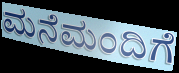
ಮನೆಮಂದಿಗೆ